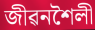
জীৱনশৈলী